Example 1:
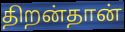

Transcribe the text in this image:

திறன்தான்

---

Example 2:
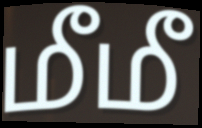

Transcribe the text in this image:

மீமீ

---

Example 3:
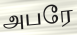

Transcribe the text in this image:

அபரே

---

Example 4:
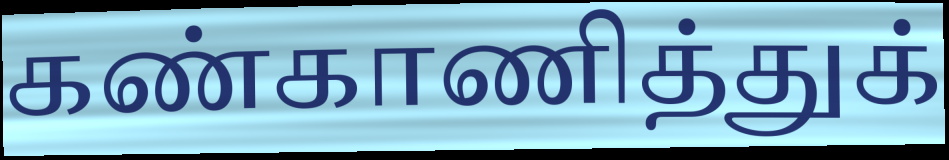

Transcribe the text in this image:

கண்காணித்துக்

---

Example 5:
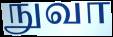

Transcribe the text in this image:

நுவா